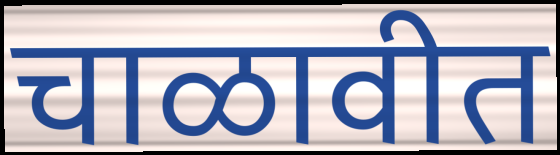
चाळावीत